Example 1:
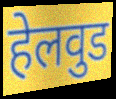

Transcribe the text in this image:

हेलवुड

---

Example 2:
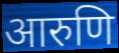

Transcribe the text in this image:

आरुणि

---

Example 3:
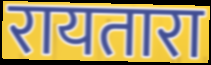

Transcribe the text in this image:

रायतारा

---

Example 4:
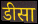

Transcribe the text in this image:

डीसा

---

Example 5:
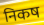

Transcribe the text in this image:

निकष